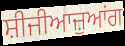
ਸ਼ੀਜੀਆਜ਼ੁਆਂਗ